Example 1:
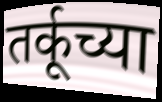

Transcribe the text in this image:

तर्कूच्या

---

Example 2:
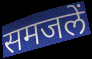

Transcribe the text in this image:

समजलें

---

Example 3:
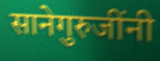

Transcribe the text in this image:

सानेगुरुजींनी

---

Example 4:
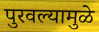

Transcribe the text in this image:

पुरवल्यामुळे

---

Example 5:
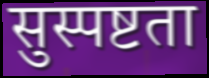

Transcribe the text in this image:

सुस्पष्टता